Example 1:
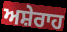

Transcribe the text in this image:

ਅਸ਼ੇਰਾਹ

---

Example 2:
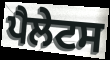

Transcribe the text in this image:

ਪੈਲੇਟਸ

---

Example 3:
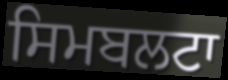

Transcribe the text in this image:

ਸਿਮਬਲਟਾ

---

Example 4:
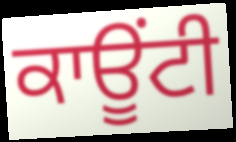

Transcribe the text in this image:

ਕਾਊਂਟੀ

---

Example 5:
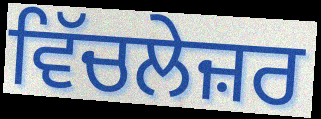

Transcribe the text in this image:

ਵਿੱਚਲੇਜ਼ਰ